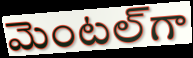
మెంటల్‌గా